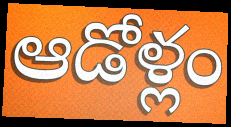
ఆడోళ్లం